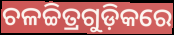
ଚଳଚ୍ଚିତ୍ରଗୁଡ଼ିକରେ